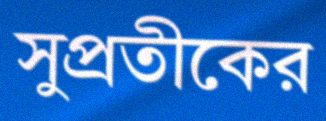
সুপ্রতীকের